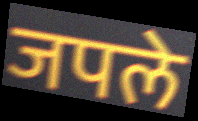
जपले